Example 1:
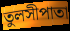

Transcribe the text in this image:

তুলসীপাতা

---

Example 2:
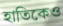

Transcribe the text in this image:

হাতিকেও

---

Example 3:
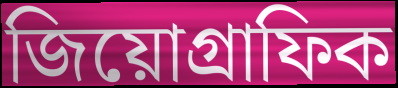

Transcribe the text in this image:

জিয়োগ্রাফিক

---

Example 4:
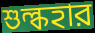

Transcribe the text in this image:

শুল্কহার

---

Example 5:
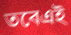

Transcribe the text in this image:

তবেএই